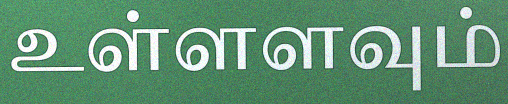
உள்ளளவும்